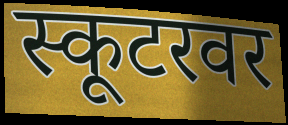
स्कूटरवर